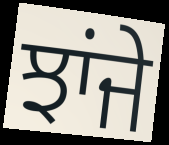
ਝਾਂਜੇ